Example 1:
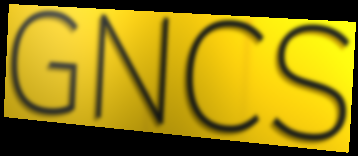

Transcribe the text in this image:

GNCS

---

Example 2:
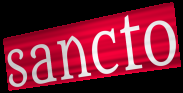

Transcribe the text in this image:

sancto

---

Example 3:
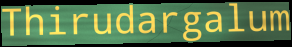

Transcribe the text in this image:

Thirudargalum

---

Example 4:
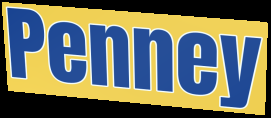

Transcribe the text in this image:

Penney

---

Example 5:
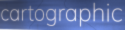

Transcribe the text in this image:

cartographic